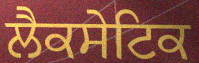
ਲੈਕਸੇਟਿਕ